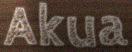
Akua